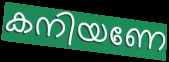
കനിയണേ